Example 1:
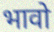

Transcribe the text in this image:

भावो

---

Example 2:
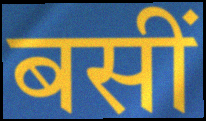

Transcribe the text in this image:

बसीं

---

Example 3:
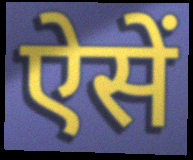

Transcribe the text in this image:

ऐसें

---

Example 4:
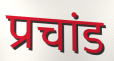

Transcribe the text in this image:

प्रचांड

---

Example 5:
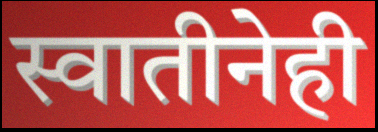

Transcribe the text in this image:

स्वातीनेही